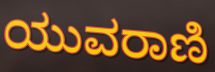
ಯುವರಾಣಿ